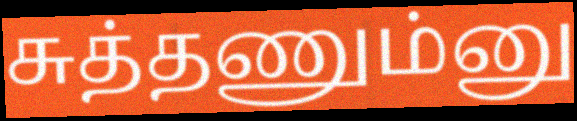
சுத்தணும்னு